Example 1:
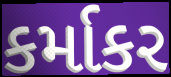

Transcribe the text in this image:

કર્માકર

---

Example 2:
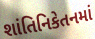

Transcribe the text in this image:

શાંતિનિકેતનમાં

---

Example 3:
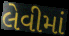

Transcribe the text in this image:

લેવીમાં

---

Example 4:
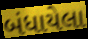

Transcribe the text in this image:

બંધાયેલા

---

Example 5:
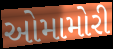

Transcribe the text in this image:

ઓમામોરી